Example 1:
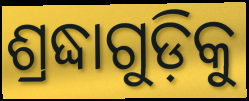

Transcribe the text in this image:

ଶ୍ରଦ୍ଧାଗୁଡ଼ିକୁ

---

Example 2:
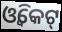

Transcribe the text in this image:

ଓ୍ଵିକେଟ୍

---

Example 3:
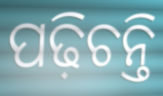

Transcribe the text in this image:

ପଢ଼ିଚନ୍ତି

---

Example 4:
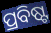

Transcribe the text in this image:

ପ୍ରବିଷ୍ଟ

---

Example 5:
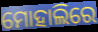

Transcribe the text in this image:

ମୋହାଲିରେ